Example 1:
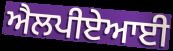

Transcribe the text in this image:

ਐਲਪੀਏਆਈ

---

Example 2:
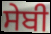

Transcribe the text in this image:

ਸੇਬੀ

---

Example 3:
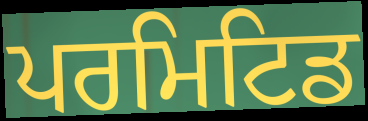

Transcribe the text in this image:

ਪਰਮਿਟਿਡ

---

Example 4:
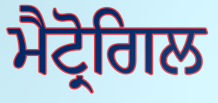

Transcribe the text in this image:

ਮੈਟ੍ਰੋਗਿਲ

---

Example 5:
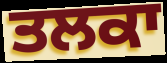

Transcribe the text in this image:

ਤਲਕਾ